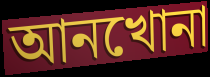
আনখোনা